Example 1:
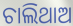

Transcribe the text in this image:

ଚାଲିଥାଅ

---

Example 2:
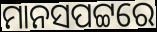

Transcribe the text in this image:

ମାନସପଟ୍ଟରେ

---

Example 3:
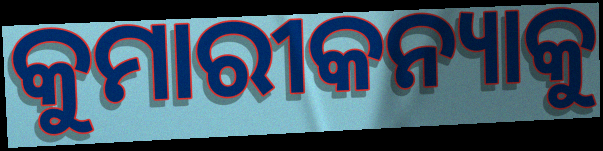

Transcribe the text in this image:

କୁମାରୀକନ୍ୟାକୁ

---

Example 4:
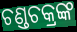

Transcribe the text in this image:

ଚଣ୍ଡଚକ୍ରଙ୍କ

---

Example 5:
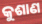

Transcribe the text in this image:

କୁଶାଣ